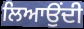
ਲਿਆਉਂਦੀ